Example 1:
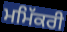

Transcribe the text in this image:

ਮਮਿੱਕਰੀ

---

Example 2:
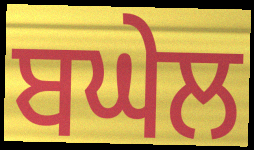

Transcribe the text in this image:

ਬਘੇਲ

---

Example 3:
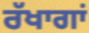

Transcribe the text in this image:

ਰੱਖਾਗਾਂ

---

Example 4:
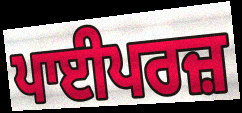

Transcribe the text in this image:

ਪਾਈਪਰਜ਼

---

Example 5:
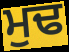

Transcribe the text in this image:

ਮੁਢ